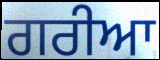
ਗਰੀਆ